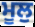
ਮੂਲੁ